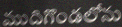
ముదిగొండలోను